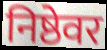
निष्ठेवर